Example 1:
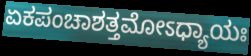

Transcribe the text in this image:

ಏಕಪಂಚಾಶತ್ತಮೋಽಧ್ಯಾಯಃ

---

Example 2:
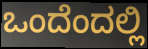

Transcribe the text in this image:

ಒಂದೆಂದಲ್ಲಿ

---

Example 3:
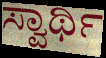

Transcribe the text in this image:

ಸ್ವಾರ್ಥಿ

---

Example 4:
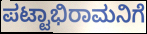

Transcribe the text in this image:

ಪಟ್ಟಾಭಿರಾಮನಿಗೆ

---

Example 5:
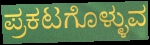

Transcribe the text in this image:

ಪ್ರಕಟಗೊಳ್ಳುವ